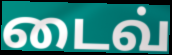
டைவ்